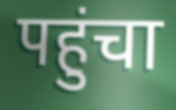
पहुंचा